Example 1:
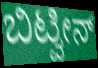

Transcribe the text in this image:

ಬಿಟ್ವೀನ್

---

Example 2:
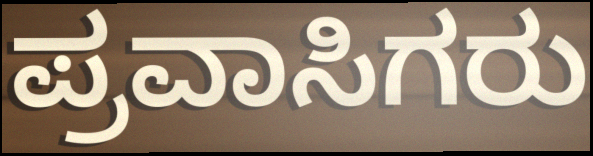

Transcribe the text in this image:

ಪ್ರವಾಸಿಗರು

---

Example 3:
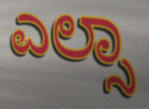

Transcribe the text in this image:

ಎಲ್ಸಾ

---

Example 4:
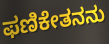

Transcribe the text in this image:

ಫಣಿಕೇತನನು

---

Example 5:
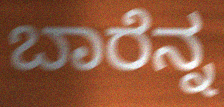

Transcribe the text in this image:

ಬಾರೆನ್ನ